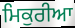
ਮਿਕੁਰੀਆ